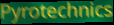
Pyrotechnics